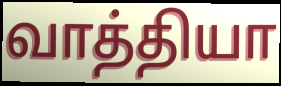
வாத்தியா